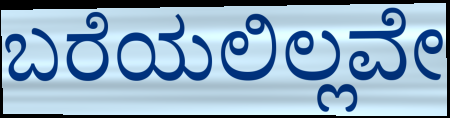
ಬರೆಯಲಿಲ್ಲವೇ